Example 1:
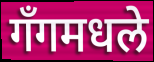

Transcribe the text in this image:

गँगमधले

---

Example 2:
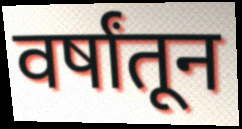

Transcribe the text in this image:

वर्षांतून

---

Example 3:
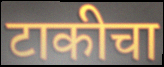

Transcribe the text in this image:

टाकीचा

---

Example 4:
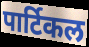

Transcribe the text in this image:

पार्टिकल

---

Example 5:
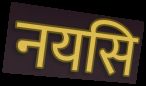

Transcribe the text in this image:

नयसि